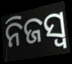
ନିଜସ୍ଵ